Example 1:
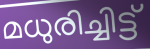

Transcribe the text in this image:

മധുരിച്ചിട്ട്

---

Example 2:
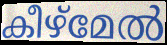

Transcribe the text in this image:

കീഴ്മേൽ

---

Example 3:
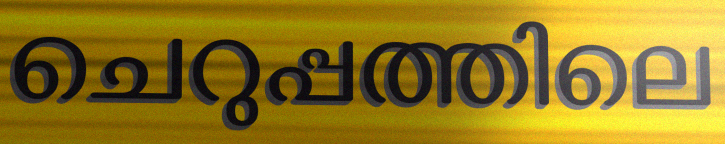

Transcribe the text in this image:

ചെറുപ്പത്തിലെ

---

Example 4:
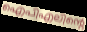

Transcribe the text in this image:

ഐപിഎലിന്റെ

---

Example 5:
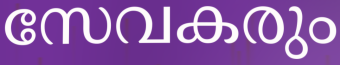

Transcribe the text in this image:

സേവകരും